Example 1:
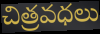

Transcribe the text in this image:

చిత్రవధలు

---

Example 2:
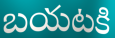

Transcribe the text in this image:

బయటకి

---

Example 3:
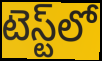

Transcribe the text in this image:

టెస్ట్‌లో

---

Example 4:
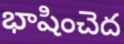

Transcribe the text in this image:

భాషించెద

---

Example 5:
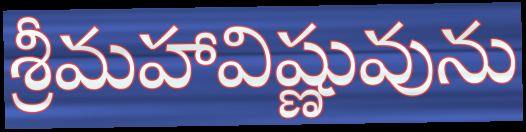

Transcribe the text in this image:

శ్రీమహావిష్ణువును